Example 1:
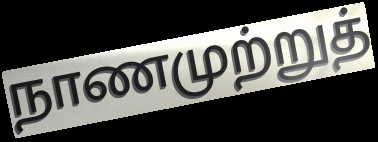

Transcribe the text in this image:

நாணமுற்றுத்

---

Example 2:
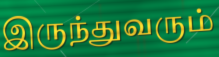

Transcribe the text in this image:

இருந்துவரும்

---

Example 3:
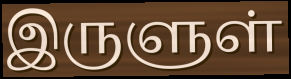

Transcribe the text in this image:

இருளுள்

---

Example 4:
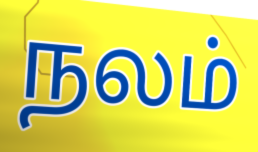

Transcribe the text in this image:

நலம்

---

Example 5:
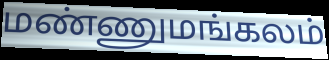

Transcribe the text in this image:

மண்ணுமங்கலம்